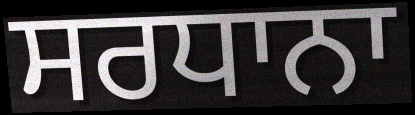
ਸਰਧਾਨਾ